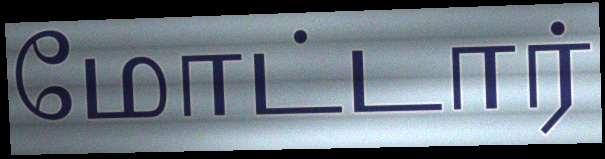
மோட்டார்